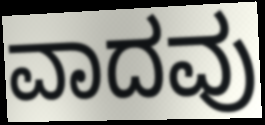
ವಾದವು